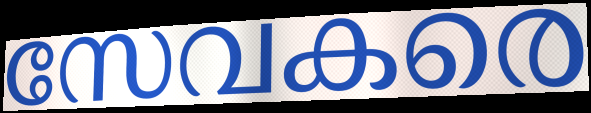
സേവകരെ